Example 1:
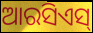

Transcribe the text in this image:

ଆରସିଏସ୍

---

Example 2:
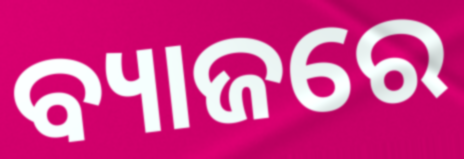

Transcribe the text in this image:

ବ୍ୟାଜରେ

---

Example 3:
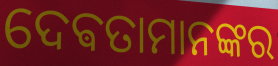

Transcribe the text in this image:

ଦେଵତାମାନଙ୍କର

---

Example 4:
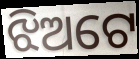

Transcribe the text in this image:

ଝିଅଟେ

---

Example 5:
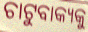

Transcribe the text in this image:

ଚାଟୁବାକ୍ୟକୁ